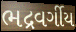
ભદ્રવર્ગીય